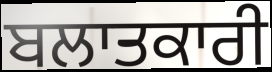
ਬਲਾਤਕਾਰੀ